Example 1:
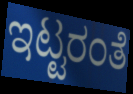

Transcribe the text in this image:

ಇಟ್ಟರಂತೆ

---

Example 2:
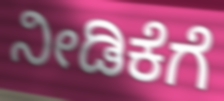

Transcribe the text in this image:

ನೀಡಿಕೆಗೆ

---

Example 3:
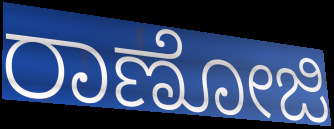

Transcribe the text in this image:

ರಾಣೋಜಿ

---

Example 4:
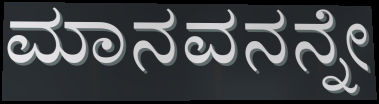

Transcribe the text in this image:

ಮಾನವನನ್ನೇ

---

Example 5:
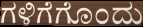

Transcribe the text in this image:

ಗಳಿಗೆಗೊಂದು